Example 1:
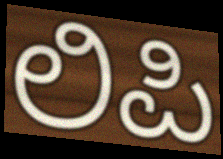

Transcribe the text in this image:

ಲಿಪಿ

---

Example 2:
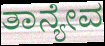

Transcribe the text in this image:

ತಾನ್ಯೇವ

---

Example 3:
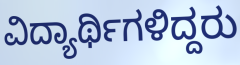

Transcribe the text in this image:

ವಿದ್ಯಾರ್ಥಿಗಳಿದ್ದರು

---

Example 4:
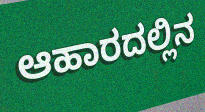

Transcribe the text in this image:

ಆಹಾರದಲ್ಲಿನ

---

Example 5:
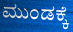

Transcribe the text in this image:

ಮುಂಡಕ್ಕೆ